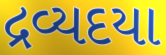
દ્રવ્યદયા